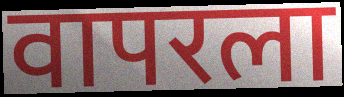
वापरला